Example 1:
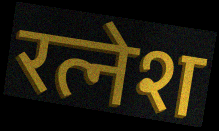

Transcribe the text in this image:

रत्नेश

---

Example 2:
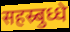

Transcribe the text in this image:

सहस्र्बुध्धे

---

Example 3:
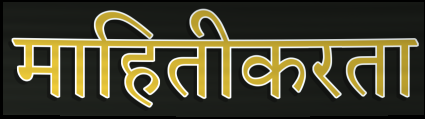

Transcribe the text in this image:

माहितीकरता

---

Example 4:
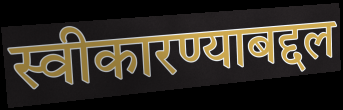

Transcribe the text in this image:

स्वीकारण्याबद्दल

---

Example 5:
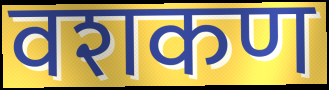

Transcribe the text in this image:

वशकण